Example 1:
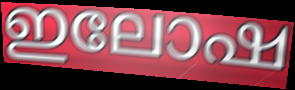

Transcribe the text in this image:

ഇലോഷ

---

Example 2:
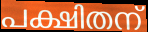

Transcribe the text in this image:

പക്ഷിതന്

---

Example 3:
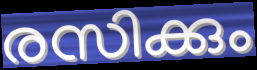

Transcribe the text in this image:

രസിക്കും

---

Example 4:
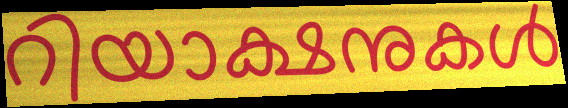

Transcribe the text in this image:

റിയാക്ഷനുകൾ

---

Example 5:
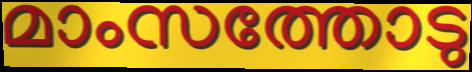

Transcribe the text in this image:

മാംസത്തോടു